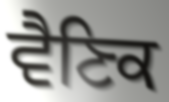
ਵੈਣਿਕ